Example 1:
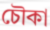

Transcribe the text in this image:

চৌকা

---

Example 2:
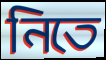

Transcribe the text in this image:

নিতে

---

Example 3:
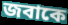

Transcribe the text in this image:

জবাকে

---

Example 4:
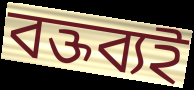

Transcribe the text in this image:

বক্তব্যই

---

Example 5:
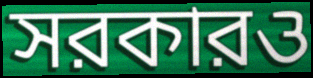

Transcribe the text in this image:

সরকারও